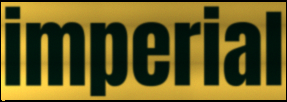
imperial